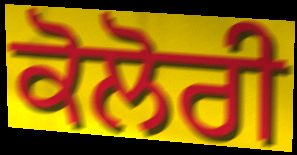
ਕੋਲੋਰੀ